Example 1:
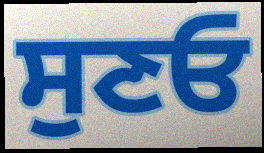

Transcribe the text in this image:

ਸੁਣਓ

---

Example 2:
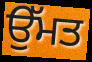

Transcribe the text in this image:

ਉੱਮਤ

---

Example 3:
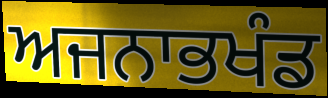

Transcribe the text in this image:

ਅਜਨਾਭਖੰਡ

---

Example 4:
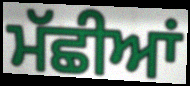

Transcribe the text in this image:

ਮੱਛੀਆਂ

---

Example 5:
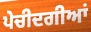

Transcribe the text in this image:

ਪੇਚੀਦਗੀਆਂ